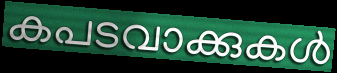
കപടവാക്കുകൾ